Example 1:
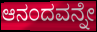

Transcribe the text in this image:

ಆನಂದವನ್ನೇ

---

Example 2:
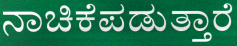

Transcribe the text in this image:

ನಾಚಿಕೆಪಡುತ್ತಾರೆ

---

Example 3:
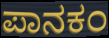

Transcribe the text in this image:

ಪಾನಕಂ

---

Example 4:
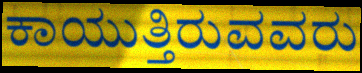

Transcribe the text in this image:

ಕಾಯುತ್ತಿರುವವರು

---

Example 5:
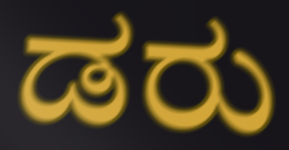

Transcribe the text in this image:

ಡರು